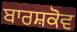
ਬਾਰਸ਼ਕੋਵ